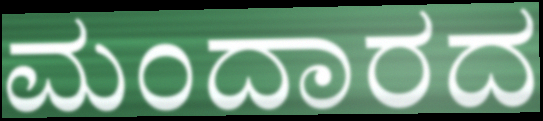
ಮಂದಾರದ